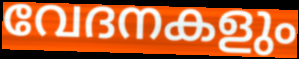
വേദനകളും